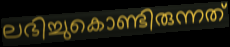
ലഭിച്ചുകൊണ്ടിരുന്നത്